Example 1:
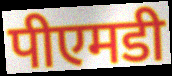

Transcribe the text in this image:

पीएमडी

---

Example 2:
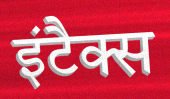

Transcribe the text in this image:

इंटैक्स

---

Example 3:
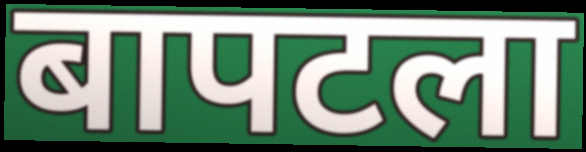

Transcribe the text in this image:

बापटला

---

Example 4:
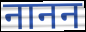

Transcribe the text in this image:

नानन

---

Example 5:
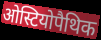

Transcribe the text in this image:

ओस्टियोपैथिक